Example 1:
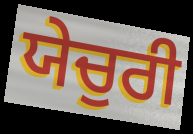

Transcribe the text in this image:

ਯੇਚੁਰੀ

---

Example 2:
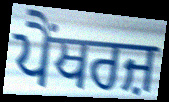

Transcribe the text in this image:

ਪੈਂਥਰਜ਼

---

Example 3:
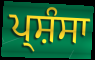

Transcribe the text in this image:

ਪ੍ਸ਼ੰਸਾ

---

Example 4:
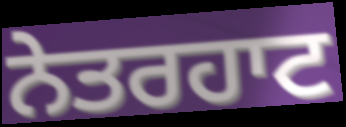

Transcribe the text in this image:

ਨੇਤਰਹਾਟ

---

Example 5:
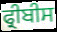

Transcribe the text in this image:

ਫ੍ਰੀਬੀਸ